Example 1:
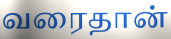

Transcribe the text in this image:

வரைதான்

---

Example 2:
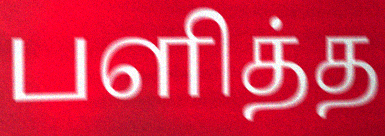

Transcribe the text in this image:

பளித்த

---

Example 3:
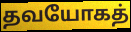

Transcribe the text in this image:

தவயோகத்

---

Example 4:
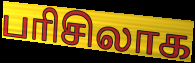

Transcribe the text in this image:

பரிசிலாக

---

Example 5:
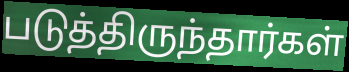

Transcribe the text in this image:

படுத்திருந்தார்கள்